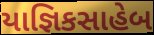
યાજ્ઞિકસાહેબ